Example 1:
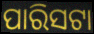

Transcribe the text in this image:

ପାରିସଟା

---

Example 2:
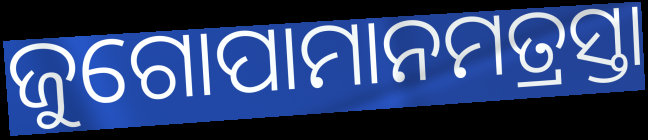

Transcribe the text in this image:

ଜୁଗୋପାମାନମତ୍ରସ୍ତା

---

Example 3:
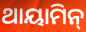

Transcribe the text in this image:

ଥାୟାମିନ୍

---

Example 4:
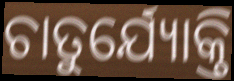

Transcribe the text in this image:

ଚାତୁର୍ଯ୍ୟୋକ୍ତି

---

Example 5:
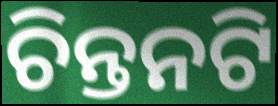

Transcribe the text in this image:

ଚିନ୍ତନଟି